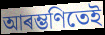
আৰম্ভণিতেই